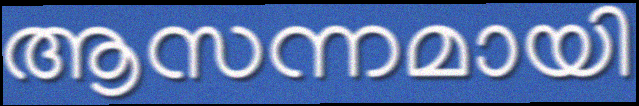
ആസന്നമായി